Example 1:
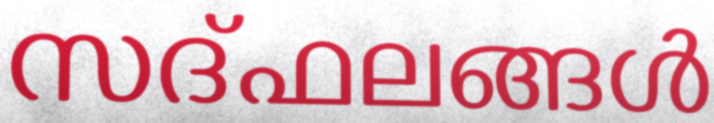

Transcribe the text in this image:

സദ്ഫലങ്ങൾ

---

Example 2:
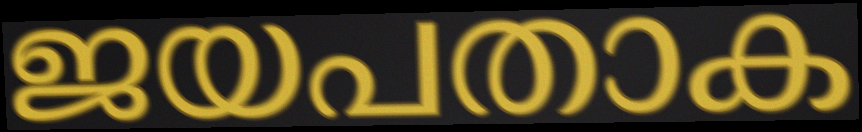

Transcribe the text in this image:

ജയപതാക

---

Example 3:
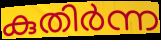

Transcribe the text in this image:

കുതിർന്ന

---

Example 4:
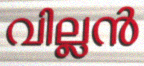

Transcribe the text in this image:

വില്ലൻ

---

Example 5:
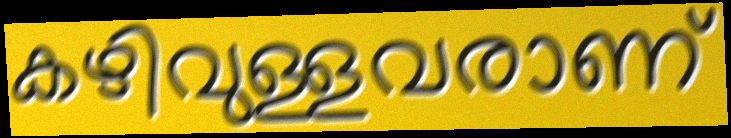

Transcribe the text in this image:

കഴിവുള്ളവരാണ്